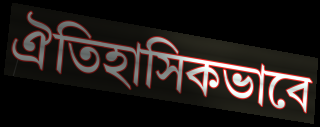
ঐতিহাসিকভাবে